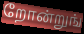
றோன்றுங்